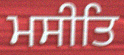
ਮਸੀਤਿ